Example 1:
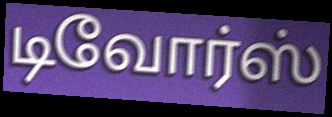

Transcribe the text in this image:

டிவோர்ஸ்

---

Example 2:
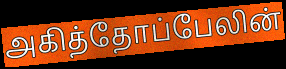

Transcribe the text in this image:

அகித்தோப்பேலின்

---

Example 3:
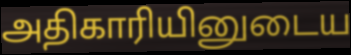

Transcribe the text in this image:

அதிகாரியினுடைய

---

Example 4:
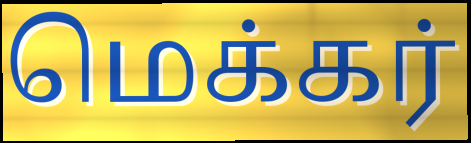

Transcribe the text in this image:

மெக்கர்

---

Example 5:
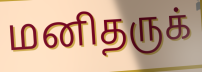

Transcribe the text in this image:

மனிதருக்